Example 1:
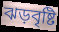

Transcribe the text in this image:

ঝড়বৃষ্টি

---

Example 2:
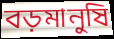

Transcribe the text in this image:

বড়মানুষি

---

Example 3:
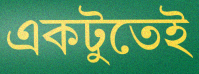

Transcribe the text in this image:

একটুতেই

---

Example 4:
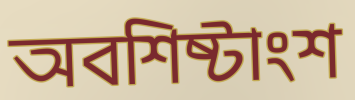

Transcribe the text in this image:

অবশিষ্টাংশ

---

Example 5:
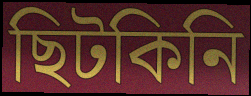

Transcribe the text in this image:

ছিটকিনি